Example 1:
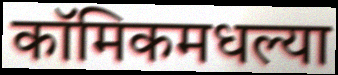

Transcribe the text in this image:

कॉमिकमधल्या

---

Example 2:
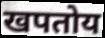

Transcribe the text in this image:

खपतोय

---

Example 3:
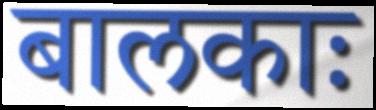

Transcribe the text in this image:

बालकाः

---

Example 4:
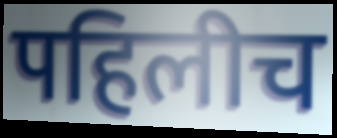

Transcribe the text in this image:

पहिलीच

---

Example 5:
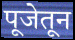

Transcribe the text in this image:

पूजेतून